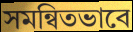
সমন্বিতভাবে